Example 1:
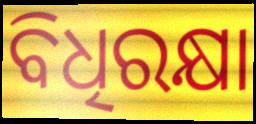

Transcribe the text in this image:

ବିଧିରକ୍ଷା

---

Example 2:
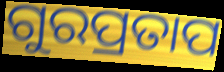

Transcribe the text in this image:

ଗୁରପ୍ରତାପ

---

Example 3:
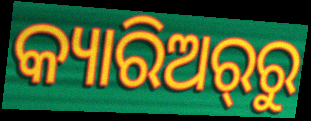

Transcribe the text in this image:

କ୍ୟାରିଅର୍‌ରୁ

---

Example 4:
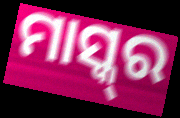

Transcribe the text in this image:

ମାସ୍କ୍‌ର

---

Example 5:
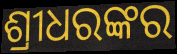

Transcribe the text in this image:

ଶ୍ରୀଧରଙ୍କର